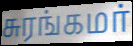
சுரங்கமர்